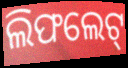
ଲିଫଲେଟ୍